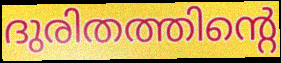
ദുരിതത്തിന്റെ